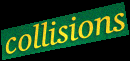
collisions